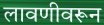
लावणीवरून